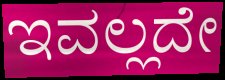
ಇವಲ್ಲದೇ